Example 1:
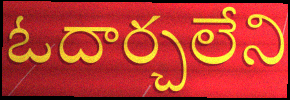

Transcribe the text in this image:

ఓదార్చలేని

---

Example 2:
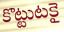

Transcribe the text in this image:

కొట్టుటకై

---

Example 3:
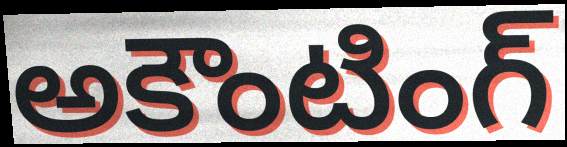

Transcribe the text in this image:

అకౌంటింగ్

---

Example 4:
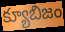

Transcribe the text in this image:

క్యూబిజం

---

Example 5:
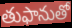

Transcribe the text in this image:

తుఫానుతో